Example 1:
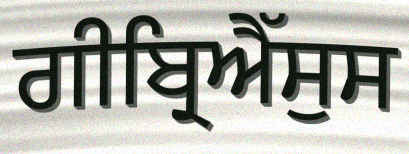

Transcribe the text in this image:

ਗੀਬ੍ਰਿਐੱਸੁਸ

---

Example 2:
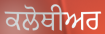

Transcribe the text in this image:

ਕਲੋਥੀਅਰ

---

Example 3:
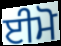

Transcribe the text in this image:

ਈਮੋ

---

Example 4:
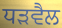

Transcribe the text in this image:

ਧੜਵੈਲ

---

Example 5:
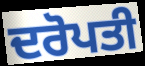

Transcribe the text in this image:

ਦਰੋਪਤੀ